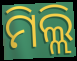
ମିଲ୍ଲି